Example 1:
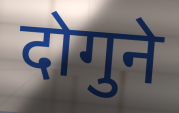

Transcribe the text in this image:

दोगुने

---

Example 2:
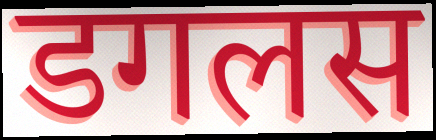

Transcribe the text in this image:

डगलस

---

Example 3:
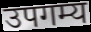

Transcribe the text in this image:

उपगम्य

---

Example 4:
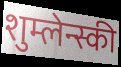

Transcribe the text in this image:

शुम्लेन्स्की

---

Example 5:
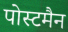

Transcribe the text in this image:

पोस्टमैन